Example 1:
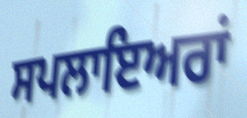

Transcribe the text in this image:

ਸਪਲਾਇਅਰਾਂ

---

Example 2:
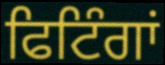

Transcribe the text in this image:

ਫਿਟਿੰਗਾਂ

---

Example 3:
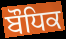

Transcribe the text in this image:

ਬੌਧਿਕ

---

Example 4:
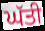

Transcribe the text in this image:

ਘੱਤੀ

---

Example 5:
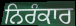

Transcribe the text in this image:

ਨਿਰੰਕਾਰ